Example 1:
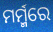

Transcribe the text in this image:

ମର୍ମ୍ମରେ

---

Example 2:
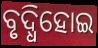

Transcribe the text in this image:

ବୃଦ୍ଧିହୋଇ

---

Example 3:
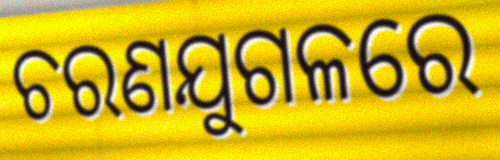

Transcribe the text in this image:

ଚରଣଯୁଗଳରେ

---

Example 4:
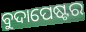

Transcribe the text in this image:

ବୁଦାପେଷ୍ଟର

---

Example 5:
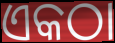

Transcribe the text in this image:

ଏକଠା